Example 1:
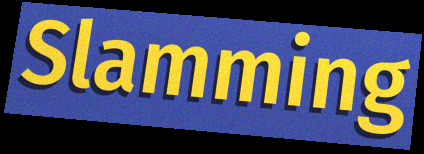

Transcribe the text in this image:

Slamming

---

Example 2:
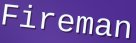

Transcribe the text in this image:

Fireman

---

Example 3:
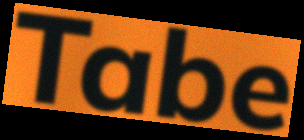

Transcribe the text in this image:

Tabe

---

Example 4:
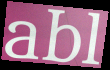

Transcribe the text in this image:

abl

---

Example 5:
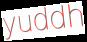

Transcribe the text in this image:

yuddh